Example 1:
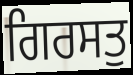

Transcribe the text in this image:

ਗਿਰਸਤੁ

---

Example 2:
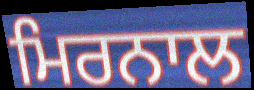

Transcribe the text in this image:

ਮਿਰਨਾਲ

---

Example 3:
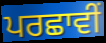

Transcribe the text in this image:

ਪਰਛਾਵੀਂ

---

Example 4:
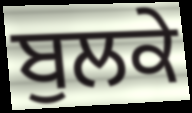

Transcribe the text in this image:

ਬੁਲਕੇ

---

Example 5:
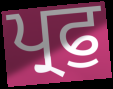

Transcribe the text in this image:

ਪ੍ਰਫੁ